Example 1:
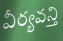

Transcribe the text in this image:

వీర్యవన్తి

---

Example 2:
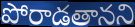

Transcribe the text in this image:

పోరాడతానని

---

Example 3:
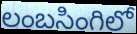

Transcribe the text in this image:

లంబసింగిలో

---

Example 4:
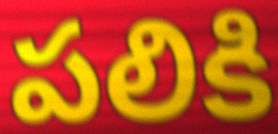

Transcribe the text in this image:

పలికి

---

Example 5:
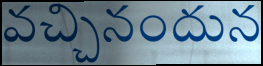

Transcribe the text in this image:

వచ్చినందున